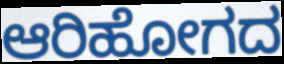
ಆರಿಹೋಗದ